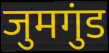
जुमगुंड